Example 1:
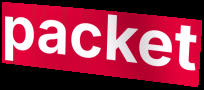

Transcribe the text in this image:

packet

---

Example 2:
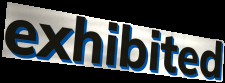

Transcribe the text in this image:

exhibited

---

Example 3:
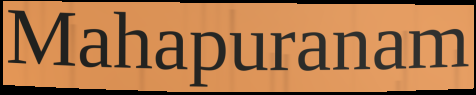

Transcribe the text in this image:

Mahapuranam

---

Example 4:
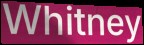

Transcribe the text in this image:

Whitney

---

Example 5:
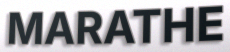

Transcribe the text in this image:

MARATHE